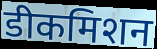
डीकमिशन